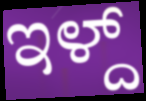
ಇಳ್ದ್